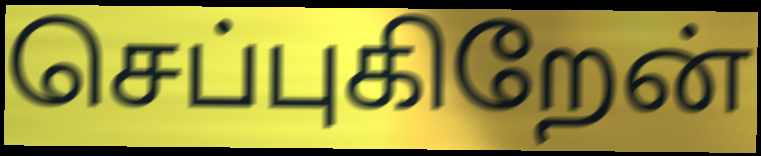
செப்புகிறேன்